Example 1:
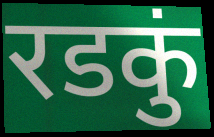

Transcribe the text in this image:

रडकुं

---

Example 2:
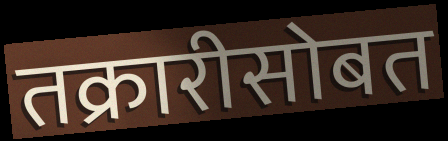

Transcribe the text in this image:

तक्रारीसोबत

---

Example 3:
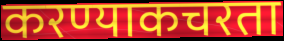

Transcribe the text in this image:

करण्याकचरता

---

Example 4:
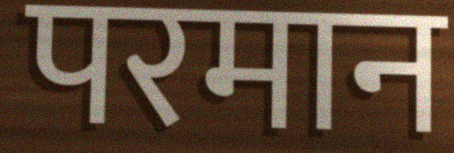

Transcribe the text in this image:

परमान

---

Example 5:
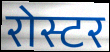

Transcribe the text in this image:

रोस्टर